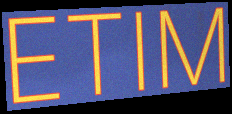
ETIM